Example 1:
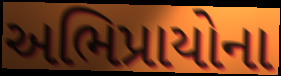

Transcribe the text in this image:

અભિપ્રાયોના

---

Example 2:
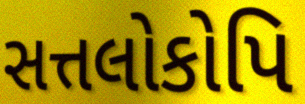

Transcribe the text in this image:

સત્તલોકોપિ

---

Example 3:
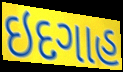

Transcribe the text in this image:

ઇદગાહ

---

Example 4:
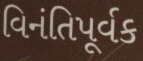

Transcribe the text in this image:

વિનંતિપૂર્વક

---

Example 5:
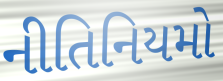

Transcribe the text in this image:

નીતિનિયમો